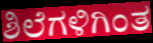
ಶಿಲೆಗಳಿಗಿಂತ